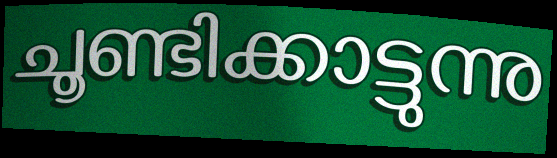
ചൂണ്ടിക്കാട്ടുന്നു